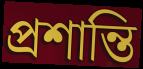
প্ৰশান্তি